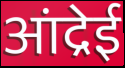
आंद्रेई